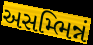
અસમ્ભિન્નં